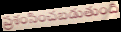
ప్రశంసించబడుతుంది